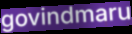
govindmaru